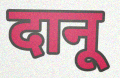
दानू